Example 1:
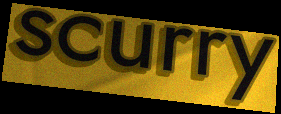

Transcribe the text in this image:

scurry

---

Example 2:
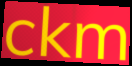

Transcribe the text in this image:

ckm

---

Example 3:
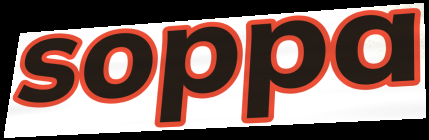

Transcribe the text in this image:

soppa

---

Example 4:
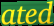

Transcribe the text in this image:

ated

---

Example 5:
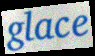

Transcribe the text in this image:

glace